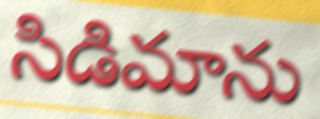
సిడిమాను